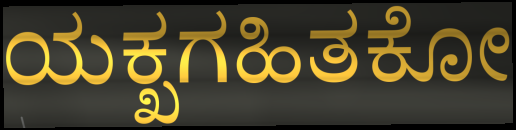
ಯಕ್ಖಗಹಿತಕೋ